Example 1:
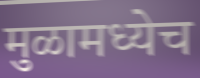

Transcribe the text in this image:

मुळामध्येच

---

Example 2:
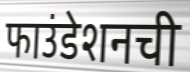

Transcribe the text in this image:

फाउंडेशनची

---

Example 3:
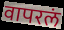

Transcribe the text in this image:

वापरलं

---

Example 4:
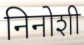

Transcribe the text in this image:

निनोशी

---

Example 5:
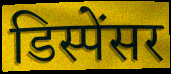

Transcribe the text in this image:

डिस्पेंसर